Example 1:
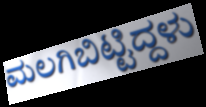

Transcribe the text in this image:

ಮಲಗಿಬಿಟ್ಟಿದ್ದಳು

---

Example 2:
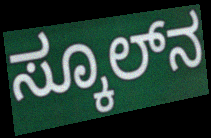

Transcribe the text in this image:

ಸ್ಕೂಲ್‌ನ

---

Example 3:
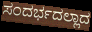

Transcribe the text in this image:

ಸಂದರ್ಭದಲ್ಲಾದ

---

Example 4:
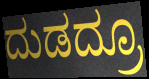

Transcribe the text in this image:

ದುಡದ್ರೂ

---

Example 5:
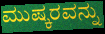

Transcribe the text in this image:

ಮುಷ್ಕರವನ್ನು